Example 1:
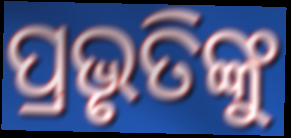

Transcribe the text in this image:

ପ୍ରଭୃତିଙ୍କୁ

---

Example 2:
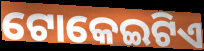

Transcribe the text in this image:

ଟୋକେଇଟିଏ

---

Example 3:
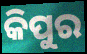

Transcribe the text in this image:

କିପୁର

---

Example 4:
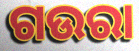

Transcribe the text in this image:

ଗଉରା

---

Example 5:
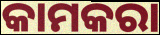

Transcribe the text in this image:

କାମକରା